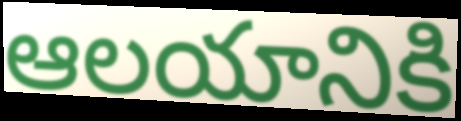
ఆలయానికి